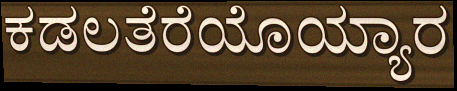
ಕಡಲತೆರೆಯೊಯ್ಯಾರ